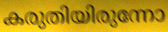
കരുതിയിരുന്നോ